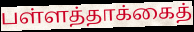
பள்ளத்தாக்கைத்